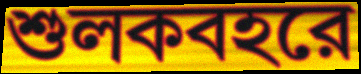
শুলকবহরে